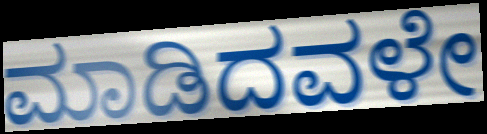
ಮಾಡಿದವಳೇ